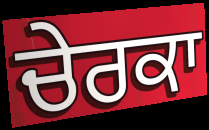
ਚੇਰਕਾ